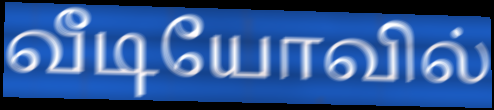
வீடியோவில்